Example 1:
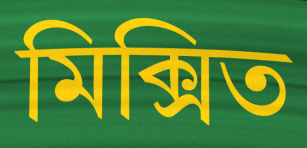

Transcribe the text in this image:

মিক্সিত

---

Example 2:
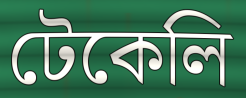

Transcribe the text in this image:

টেকেলি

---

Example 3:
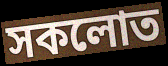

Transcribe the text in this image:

সকলোত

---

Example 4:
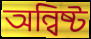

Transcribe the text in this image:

অন্বিষ্ট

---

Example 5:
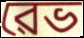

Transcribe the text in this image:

ৱেভ